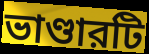
ভাণ্ডারটি